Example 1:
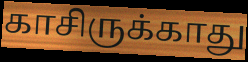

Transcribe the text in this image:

காசிருக்காது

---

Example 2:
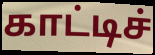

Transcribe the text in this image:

காட்டிச்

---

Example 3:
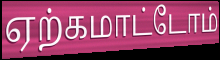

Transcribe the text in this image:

ஏற்கமாட்டோம்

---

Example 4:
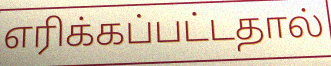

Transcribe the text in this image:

எரிக்கப்பட்டதால்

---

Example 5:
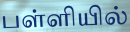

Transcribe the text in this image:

பள்ளியில்